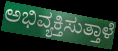
ಅಭಿವ್ಯಕ್ತಿಸುತ್ತಾಳೆ